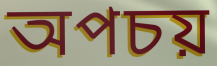
অপচয়